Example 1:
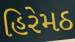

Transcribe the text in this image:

હિરેમઠ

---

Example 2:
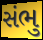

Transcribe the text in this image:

સંભુ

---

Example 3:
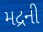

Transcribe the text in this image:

મદ્રની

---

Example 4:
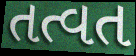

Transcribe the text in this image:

તત્વત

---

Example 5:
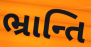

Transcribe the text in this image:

ભ્રાન્તિ